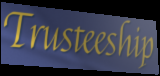
Trusteeship